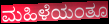
ಮಹಿಳೆಯಂತೂ